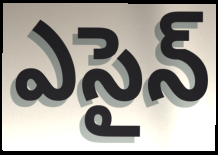
ఎసైన్